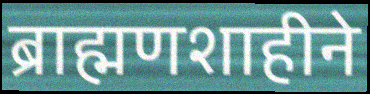
ब्राह्मणशाहीने